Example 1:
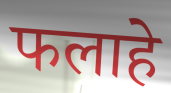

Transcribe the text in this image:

फलाहे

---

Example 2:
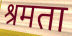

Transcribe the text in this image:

श्रमता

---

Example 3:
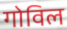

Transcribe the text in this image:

गोविल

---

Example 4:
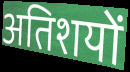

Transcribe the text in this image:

अतिशयों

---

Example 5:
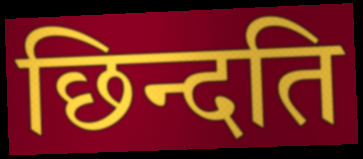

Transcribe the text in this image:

छिन्दति